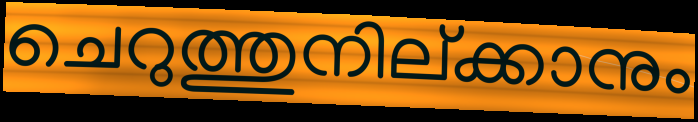
ചെറുത്തുനില്ക്കാനും